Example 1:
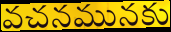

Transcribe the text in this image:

వచనమునకు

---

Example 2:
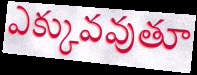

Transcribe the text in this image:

ఎక్కువవుతూ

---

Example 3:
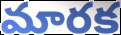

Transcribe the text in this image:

మారక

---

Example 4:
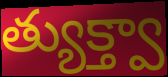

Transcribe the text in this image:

త్యుక్త్వా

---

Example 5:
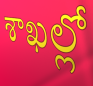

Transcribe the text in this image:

శాఖల్లో